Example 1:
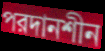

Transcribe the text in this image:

পরদানশীন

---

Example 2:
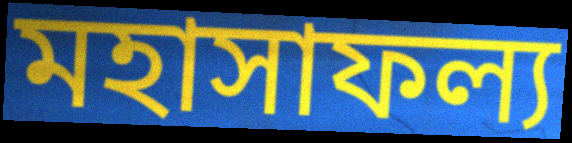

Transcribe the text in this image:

মহাসাফল্য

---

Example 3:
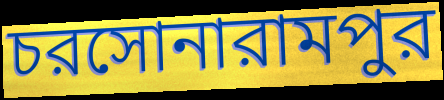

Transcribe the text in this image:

চরসোনারামপুর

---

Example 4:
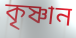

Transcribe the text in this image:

কৃষ্ণান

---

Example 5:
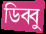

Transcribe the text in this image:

ডিব্বু